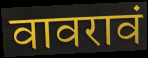
वावरावं